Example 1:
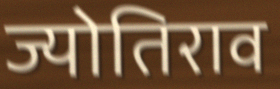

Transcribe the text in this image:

ज्‍योतिराव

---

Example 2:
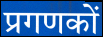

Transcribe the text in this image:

प्रगणकों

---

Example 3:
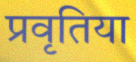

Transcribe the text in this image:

प्रवृतिया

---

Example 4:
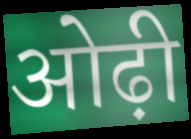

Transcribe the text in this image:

ओढ़ी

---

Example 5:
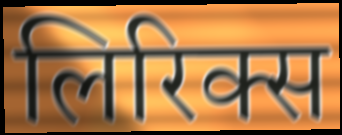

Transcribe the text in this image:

लिरिक्स